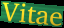
Vitae